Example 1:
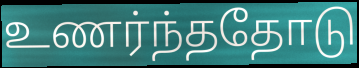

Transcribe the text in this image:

உணர்ந்ததோடு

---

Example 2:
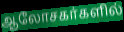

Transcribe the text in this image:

ஆலோசகர்களில்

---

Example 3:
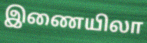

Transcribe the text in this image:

இணையிலா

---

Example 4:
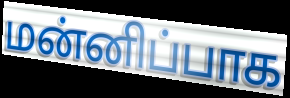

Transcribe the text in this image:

மன்னிப்பாக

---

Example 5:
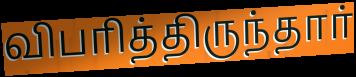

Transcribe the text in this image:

விபரித்திருந்தார்